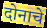
दोनाचे